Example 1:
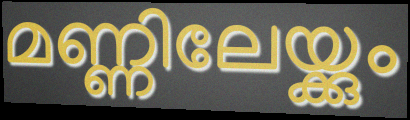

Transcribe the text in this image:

മണ്ണിലേയ്ക്കും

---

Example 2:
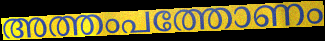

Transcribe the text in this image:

അത്തംപത്തോണം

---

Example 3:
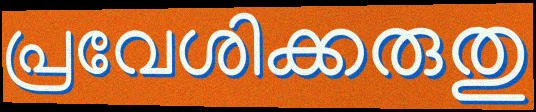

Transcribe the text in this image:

പ്രവേശിക്കരുതു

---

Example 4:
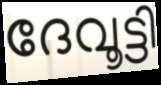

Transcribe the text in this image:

ദേവൂട്ടി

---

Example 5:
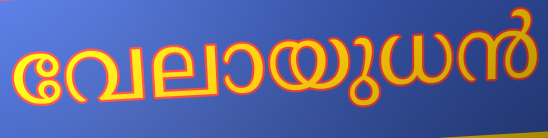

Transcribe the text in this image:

വേലായുധൻ